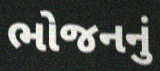
ભોજનનું